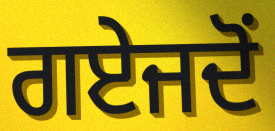
ਗਏਜਦੋਂ